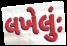
લખેલુંઃ